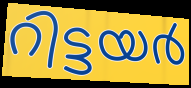
റിട്ടയർ